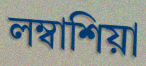
লম্বাশিয়া